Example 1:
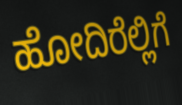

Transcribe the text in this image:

ಹೋದಿರೆಲ್ಲಿಗೆ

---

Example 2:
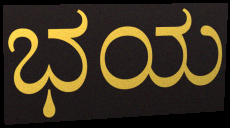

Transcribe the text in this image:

ಭಯ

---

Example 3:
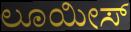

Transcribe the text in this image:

ಲೂಯೀಸ್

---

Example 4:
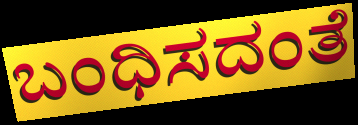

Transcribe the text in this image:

ಬಂಧಿಸದಂತೆ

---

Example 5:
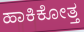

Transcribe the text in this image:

ಹಾಕಿಕೋತ್ತ